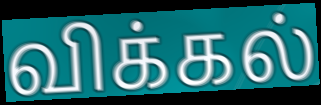
விக்கல்